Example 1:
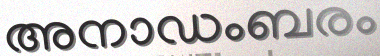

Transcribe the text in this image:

അനാഡംബരം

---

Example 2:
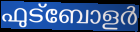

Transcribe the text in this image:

ഫുട്ബോളർ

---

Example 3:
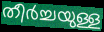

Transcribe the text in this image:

തീർച്ചയുള്ള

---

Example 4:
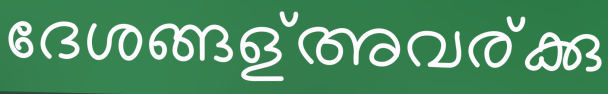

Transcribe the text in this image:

ദേശങ്ങള്അവര്ക്കു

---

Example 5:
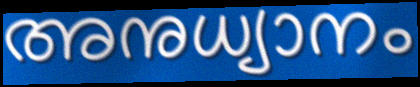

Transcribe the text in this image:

അനുധ്യാനം